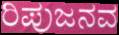
ರಿಪುಜನವ